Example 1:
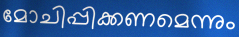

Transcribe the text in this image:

മോചിപ്പിക്കണമെന്നും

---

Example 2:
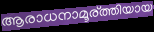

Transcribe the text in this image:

ആരാധനാമൂര്ത്തിയായ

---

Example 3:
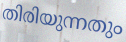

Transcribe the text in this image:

തിരിയുന്നതും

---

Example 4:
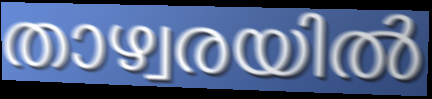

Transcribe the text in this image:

താഴ്വരയിൽ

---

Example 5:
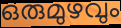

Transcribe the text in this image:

ഒരുമുഴവും